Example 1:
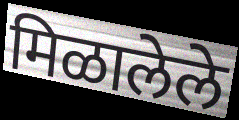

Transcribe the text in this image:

मिळालेले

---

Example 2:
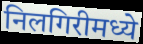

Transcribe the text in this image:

निलगिरीमध्ये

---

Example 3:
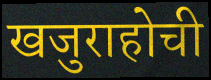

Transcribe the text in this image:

खजुराहोची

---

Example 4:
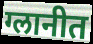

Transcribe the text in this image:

ग्लानीत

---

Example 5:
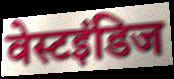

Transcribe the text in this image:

वेस्टइंडिज